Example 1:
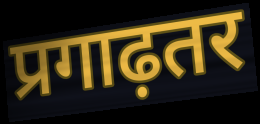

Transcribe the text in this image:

प्रगाढ़तर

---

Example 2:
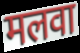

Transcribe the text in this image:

मलवा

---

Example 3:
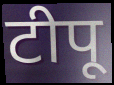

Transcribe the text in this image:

टीपू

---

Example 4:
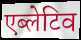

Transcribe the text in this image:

एब्लेटिव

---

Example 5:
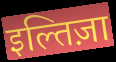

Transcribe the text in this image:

इल्तिज़ा